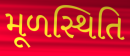
મૂળસ્થિતિ